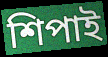
শিপাই